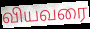
வியவரை